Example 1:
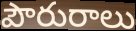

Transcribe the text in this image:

పౌరురాలు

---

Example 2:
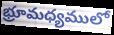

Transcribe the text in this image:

భ్రూమధ్యములో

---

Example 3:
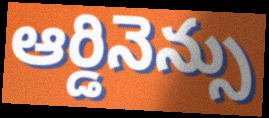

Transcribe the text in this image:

ఆర్డినెన్సు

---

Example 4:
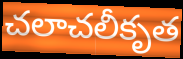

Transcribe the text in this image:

చలాచలీకృత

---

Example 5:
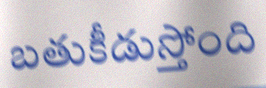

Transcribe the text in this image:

బతుకీడుస్తోంది